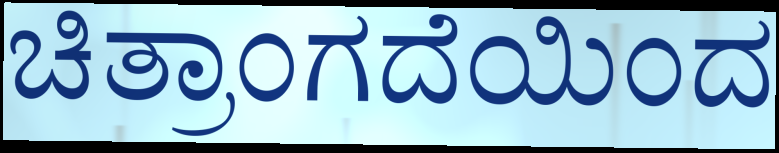
ಚಿತ್ರಾಂಗದೆಯಿಂದ